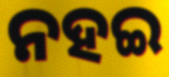
ନହଇ